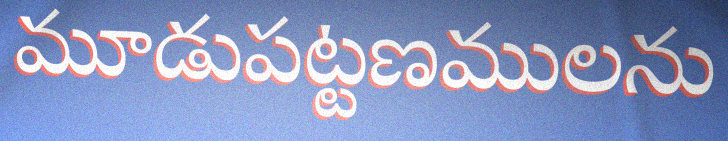
మూడుపట్టణములను